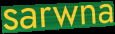
sarwna